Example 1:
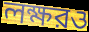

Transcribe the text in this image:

লক্ষরও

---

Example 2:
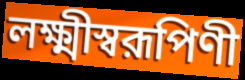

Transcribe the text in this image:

লক্ষ্মীস্বরূপিণী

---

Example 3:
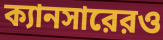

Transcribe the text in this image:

ক্যানসারেরও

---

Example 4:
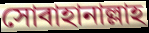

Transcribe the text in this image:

সোবাহানাল্লাহ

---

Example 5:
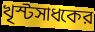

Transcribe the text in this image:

খৃস্টসাধকের